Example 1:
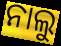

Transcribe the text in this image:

ନାଲୁ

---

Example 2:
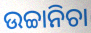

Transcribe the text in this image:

ଉଚ୍ଚାନିଚା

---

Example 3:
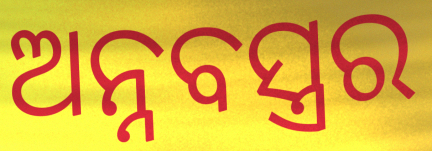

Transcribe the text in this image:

ଅନ୍ନବସ୍ତ୍ରର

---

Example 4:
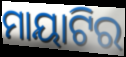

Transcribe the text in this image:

ମାୟାଟିର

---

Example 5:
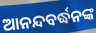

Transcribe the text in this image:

ଆନନ୍ଦବର୍ଦ୍ଧନଙ୍କ